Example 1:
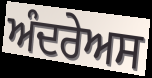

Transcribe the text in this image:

ਅੰਦਰੇਅਸ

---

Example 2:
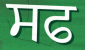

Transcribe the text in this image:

ਸਫ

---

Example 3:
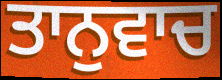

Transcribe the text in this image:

ਤਾਨੁਵਾਚ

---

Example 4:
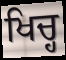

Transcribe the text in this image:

ਖਿਚ੍ਹ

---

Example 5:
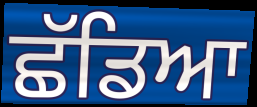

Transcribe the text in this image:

ਛੱਡਿਆ